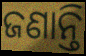
ଜଣାନ୍ତି